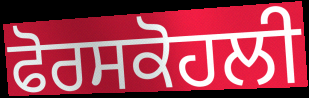
ਫੋਰਸਕੋਹਲੀ